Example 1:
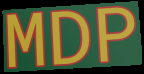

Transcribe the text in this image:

MDP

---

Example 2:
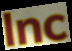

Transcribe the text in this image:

Inc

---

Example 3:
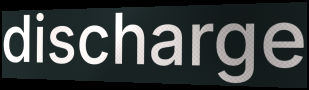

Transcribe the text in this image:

discharge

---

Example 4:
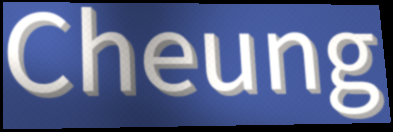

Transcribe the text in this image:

Cheung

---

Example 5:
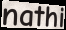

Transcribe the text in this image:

nathi